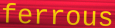
ferrous